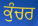
ਕੁੰਚਰ